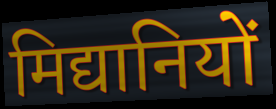
मिद्यानियों